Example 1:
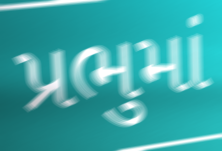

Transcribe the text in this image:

પ્રભુમાં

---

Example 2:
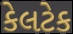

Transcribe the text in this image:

કેલટેક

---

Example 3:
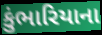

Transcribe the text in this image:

કુંભારિયાના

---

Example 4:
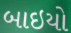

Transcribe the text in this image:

બાઇયો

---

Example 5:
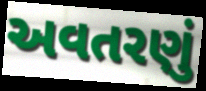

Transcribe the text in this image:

અવતરણું